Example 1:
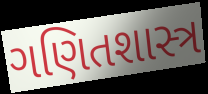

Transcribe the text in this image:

ગણિતશાસ્ત્ર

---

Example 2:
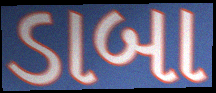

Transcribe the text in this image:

ડાબા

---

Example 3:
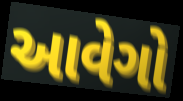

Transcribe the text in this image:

આવેગો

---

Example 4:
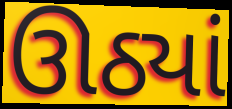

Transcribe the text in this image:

ઊઠ્યાં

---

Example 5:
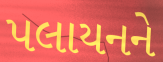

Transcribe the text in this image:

પલાયનને